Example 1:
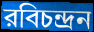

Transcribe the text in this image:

রবিচন্দ্রন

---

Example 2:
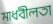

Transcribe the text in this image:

মাধবীলতা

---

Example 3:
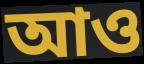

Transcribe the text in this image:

আও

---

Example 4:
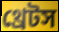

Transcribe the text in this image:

থ্রেটস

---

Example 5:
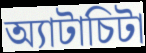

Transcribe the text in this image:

অ্যাটাচিটা